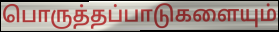
பொருத்தப்பாடுகளையும்